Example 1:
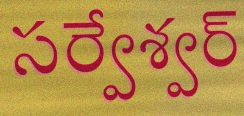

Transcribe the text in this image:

సర్వేశ్వర్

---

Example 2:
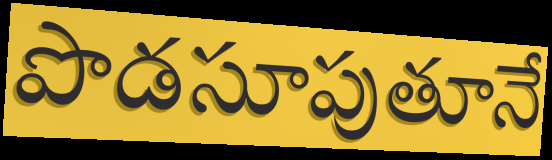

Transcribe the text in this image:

పొడసూపుతూనే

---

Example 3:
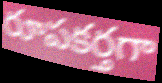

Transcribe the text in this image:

రూపకర్తగా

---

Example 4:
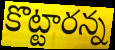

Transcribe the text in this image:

కొట్టారన్న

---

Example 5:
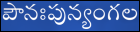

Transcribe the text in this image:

పౌనఃపున్యంగల